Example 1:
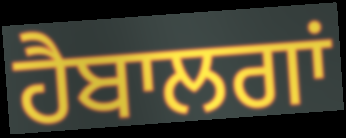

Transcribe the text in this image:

ਹੈਬਾਲਗਾਂ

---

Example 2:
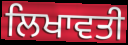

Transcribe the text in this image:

ਲਿਖਾਵਤੀ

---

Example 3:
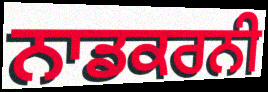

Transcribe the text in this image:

ਨਾਡਕਰਨੀ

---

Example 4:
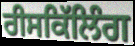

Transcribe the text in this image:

ਰੀਸਕਿੱਲਿੰਗ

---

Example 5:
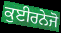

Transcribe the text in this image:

ਕੁਈਰਨੇਜੋ